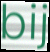
bij